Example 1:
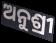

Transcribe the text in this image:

ଅନୁଶ୍ରୀ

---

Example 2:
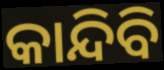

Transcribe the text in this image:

କାନ୍ଦିବି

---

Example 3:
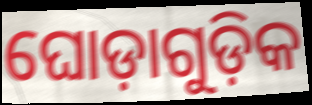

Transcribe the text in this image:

ଘୋଡ଼ାଗୁଡ଼ିକ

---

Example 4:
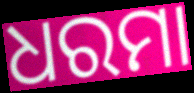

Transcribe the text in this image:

ଧରମା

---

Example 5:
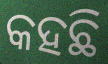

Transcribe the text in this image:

କହଛି